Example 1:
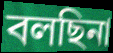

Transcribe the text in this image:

বলছিনা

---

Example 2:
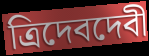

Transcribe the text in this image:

ত্রিদেবদেবী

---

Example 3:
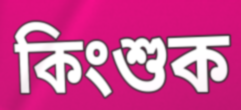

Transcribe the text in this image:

কিংশুক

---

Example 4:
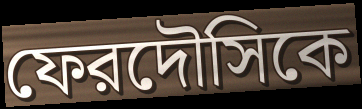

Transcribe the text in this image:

ফেরদৌসিকে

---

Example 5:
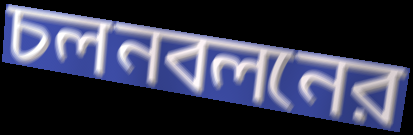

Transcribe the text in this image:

চলনবলনের